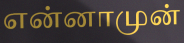
என்னாமுன்